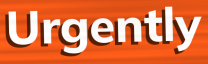
Urgently